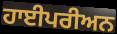
ਹਾਈਪਰੀਅਨ